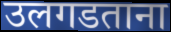
उलगडताना